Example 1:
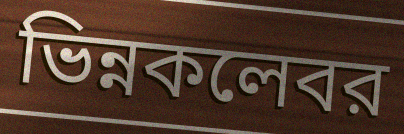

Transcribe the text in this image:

ভিন্নকলেবর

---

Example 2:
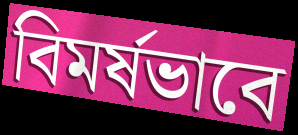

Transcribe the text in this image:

বিমর্ষভাবে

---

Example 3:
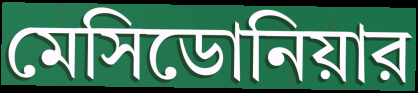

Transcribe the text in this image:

মেসিডোনিয়ার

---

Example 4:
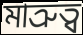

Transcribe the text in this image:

মাত্রুত্ব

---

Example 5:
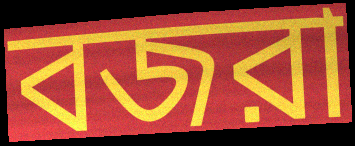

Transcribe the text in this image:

বজরা